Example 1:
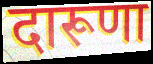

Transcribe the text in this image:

दारूणा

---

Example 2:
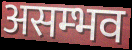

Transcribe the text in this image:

असम्‍भव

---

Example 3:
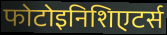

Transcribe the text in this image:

फोटोइनिशिएटर्स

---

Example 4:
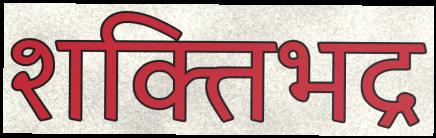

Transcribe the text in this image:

शक्तिभद्र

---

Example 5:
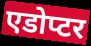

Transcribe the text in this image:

एडोप्टर